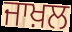
ਜਾਖ਼ਲ